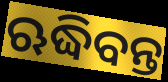
ଋଦ୍ଧିବନ୍ତ